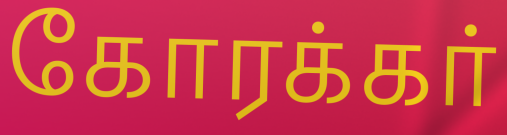
கோரக்கர்